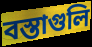
বস্তাগুলি